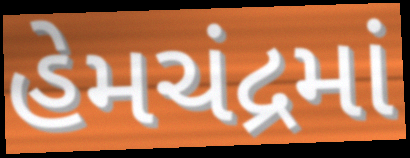
હેમચંદ્રમાં